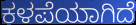
ಕಳಪೆಯಾಗಿದೆ